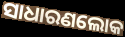
ସାଧାରଣଲୋକ